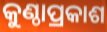
କୁଣ୍ଠାପ୍ରକାଶ